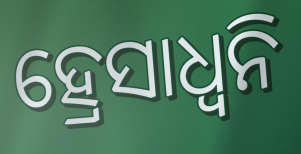
ହ୍ରେସାଧ୍ୱନି